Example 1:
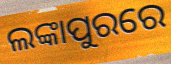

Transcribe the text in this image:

ଲଙ୍କାପୁରରେ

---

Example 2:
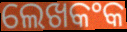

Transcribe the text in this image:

ଲେଖକଂକ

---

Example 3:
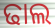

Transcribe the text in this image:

ଢାଲ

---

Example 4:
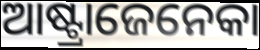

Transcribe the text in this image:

ଆଷ୍ଟ୍ରାଜେନେକା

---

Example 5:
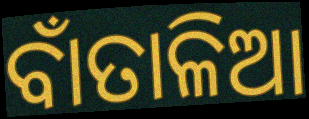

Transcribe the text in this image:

ବାଁତାଳିଆ